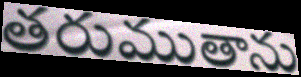
తరుముతాను